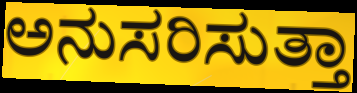
ಅನುಸರಿಸುತ್ತಾ